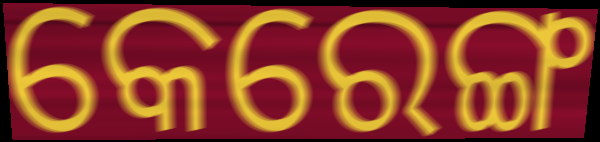
କେରେଙ୍ଗ